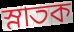
স্নাতক